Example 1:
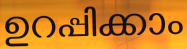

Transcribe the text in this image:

ഉറപ്പിക്കാം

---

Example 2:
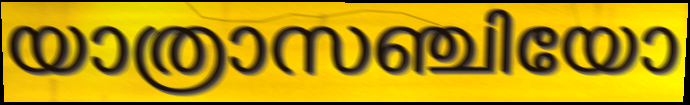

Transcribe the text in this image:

യാത്രാസഞ്ചിയോ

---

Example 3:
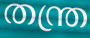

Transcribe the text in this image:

തന്ത്ര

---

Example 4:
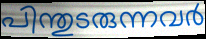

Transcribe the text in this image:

പിന്തുടരുന്നവർ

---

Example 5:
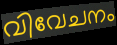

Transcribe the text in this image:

വിവേചനം